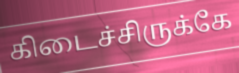
கிடைச்சிருக்கே